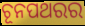
ଚୂନପଥରର